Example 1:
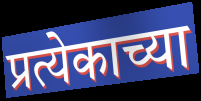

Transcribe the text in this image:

प्रत्येकाच्या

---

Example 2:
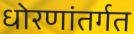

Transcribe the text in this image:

धोरणांतर्गत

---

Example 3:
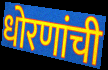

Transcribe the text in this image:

धोरणांची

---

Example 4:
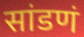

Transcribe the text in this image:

सांडणं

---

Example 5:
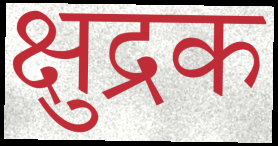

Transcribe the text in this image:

क्षुद्रक